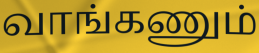
வாங்கணும்